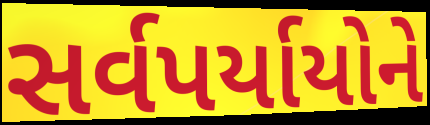
સર્વપર્યાયોને